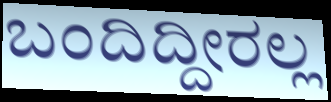
ಬಂದಿದ್ದೀರಲ್ಲ